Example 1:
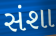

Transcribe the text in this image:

સંશા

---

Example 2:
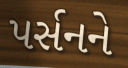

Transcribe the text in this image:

પર્સનને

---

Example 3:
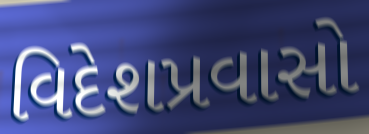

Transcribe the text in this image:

વિદેશપ્રવાસો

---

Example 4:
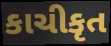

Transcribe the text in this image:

કાચીકૃત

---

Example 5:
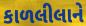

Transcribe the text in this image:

કાળલીલાને